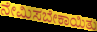
ನೇಮಿಸಬೇಕಾಯಿತು